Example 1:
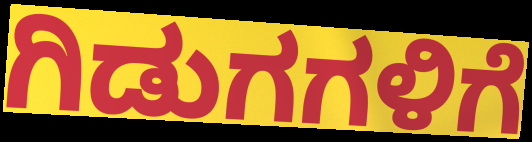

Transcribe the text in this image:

ಗಿಡುಗಗಳಿಗೆ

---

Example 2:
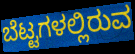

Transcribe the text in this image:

ಬೆಟ್ಟಗಳಲ್ಲಿರುವ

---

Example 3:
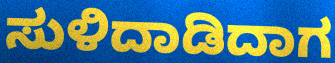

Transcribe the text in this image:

ಸುಳಿದಾಡಿದಾಗ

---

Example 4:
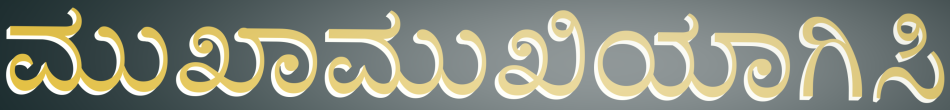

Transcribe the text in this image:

ಮುಖಾಮುಖಿಯಾಗಿಸಿ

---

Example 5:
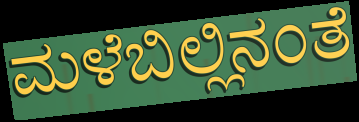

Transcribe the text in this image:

ಮಳೆಬಿಲ್ಲಿನಂತೆ